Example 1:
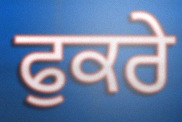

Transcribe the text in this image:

ਫੁਕਰੇ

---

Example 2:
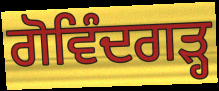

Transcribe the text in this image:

ਗੋਵਿੰਦਗੜ੍ਹ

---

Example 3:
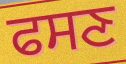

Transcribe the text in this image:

ਫਸਣ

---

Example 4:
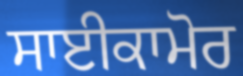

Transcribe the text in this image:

ਸਾਈਕਾਮੋਰ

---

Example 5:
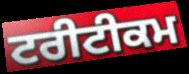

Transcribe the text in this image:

ਟਰੀਟੀਕਮ